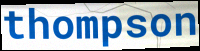
thompson